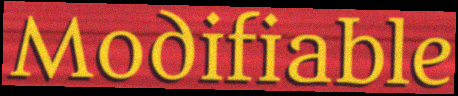
Modifiable